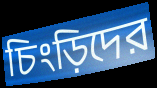
চিংড়িদের